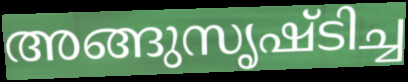
അങ്ങുസൃഷ്ടിച്ച